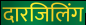
दारजिलिंग